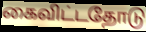
கைவிட்டதோடு